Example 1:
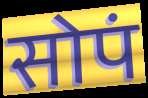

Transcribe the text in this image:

सोपं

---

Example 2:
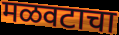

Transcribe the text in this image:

मळवटाचा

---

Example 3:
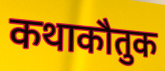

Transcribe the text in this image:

कथाकौतुक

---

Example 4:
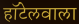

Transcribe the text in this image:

हॉटेलवाला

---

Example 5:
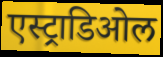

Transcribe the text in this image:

एस्ट्राडिओल